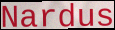
Nardus